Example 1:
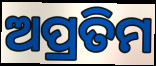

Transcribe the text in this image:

ଅପ୍ରତିମ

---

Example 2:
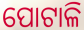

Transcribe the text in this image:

ପୋଟାଳି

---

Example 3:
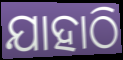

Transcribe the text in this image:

ଯାହାଠି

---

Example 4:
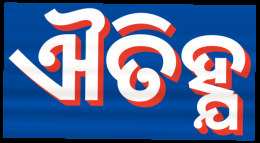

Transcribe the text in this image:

ଐତିହ୍ଯ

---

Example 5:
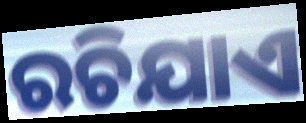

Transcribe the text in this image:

ରଚିଯାଏ